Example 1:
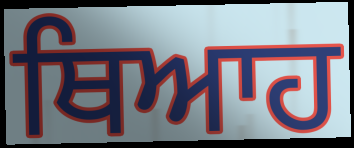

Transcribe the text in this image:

ਥਿਆਹ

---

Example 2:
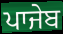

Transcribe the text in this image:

ਪਾਜੇਬ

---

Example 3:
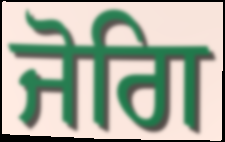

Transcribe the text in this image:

ਜੋਗਿ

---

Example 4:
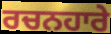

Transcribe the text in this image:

ਰਚਨਹਾਰੇ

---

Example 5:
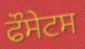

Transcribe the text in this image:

ਫੌਸੇਟਸ